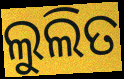
ଲୁଲିତ